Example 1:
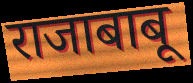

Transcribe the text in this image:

राजाबाबू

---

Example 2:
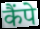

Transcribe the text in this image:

कैंपे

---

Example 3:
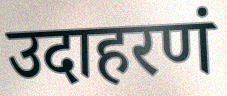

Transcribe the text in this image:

उदाहरणं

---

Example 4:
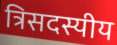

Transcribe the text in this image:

त्रिसदस्यीय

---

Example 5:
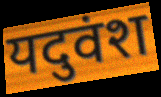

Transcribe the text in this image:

यदुवंश